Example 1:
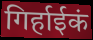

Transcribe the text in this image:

गिर्हाईकं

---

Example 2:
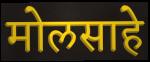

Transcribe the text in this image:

मोलसाहे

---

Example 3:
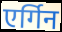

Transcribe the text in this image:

एर्गिन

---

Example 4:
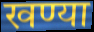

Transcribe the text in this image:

खण्या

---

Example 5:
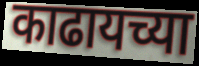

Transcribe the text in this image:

काढायच्या